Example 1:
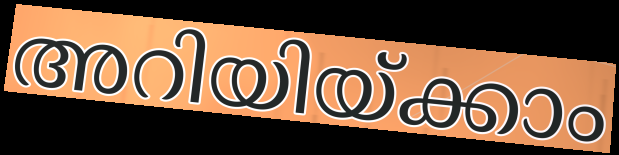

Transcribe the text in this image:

അറിയിയ്ക്കാം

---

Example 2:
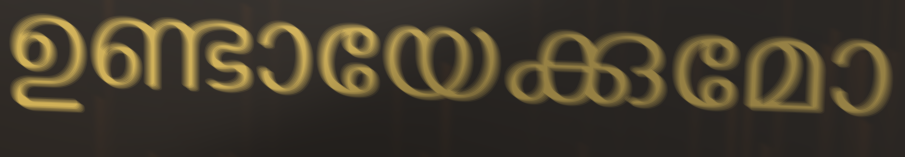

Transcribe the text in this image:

ഉണ്ടായേക്കുമോ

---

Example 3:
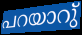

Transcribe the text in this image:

പറയാറു്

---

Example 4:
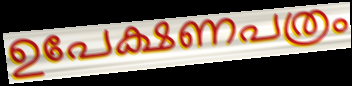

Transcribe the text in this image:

ഉപേക്ഷണപത്രം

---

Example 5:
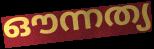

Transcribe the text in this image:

ഔന്നത്യ